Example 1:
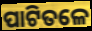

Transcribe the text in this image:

ପାଟିତଳେ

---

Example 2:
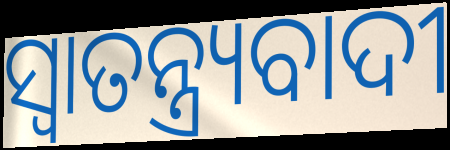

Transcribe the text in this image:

ସ୍ୱାତନ୍ତ୍ର୍ୟବାଦୀ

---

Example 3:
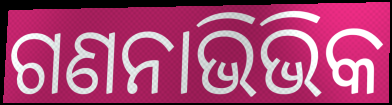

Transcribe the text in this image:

ଗଣନାଭିଭିକ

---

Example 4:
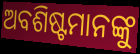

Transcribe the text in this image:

ଅବଶିଷ୍ଟମାନଙ୍କୁ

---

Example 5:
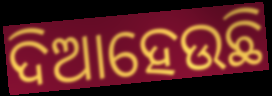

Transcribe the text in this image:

ଦିଆହେଉଛି